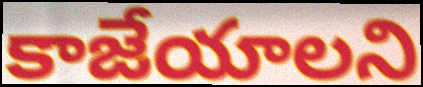
కాజేయాలని